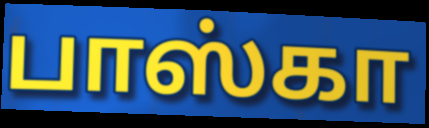
பாஸ்கா